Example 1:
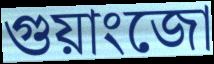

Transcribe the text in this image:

গুয়াংজো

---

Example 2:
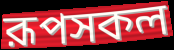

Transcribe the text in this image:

রূপসকল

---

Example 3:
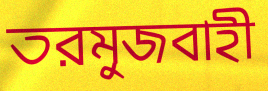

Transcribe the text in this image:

তরমুজবাহী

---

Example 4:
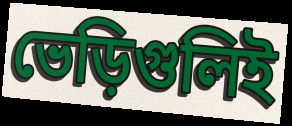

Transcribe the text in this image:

ভেড়িগুলিই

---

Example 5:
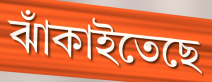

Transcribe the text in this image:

ঝাঁকাইতেছে